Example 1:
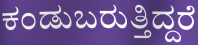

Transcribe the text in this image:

ಕಂಡುಬರುತ್ತಿದ್ದರೆ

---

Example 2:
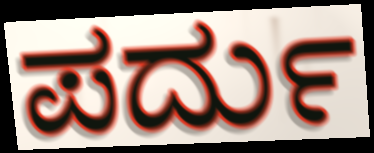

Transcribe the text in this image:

ಪರ್ದು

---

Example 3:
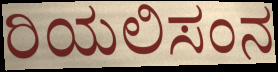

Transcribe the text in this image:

ರಿಯಲಿಸಂನ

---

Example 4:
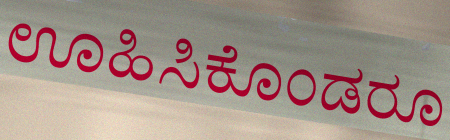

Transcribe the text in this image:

ಊಹಿಸಿಕೊಂಡರೂ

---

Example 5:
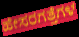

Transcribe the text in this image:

ಹೇಸರಗತ್ತೆಗಳ